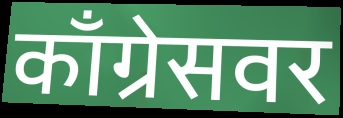
काँग्रेसवर